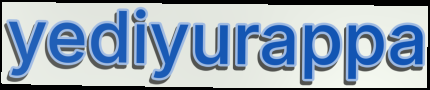
yediyurappa